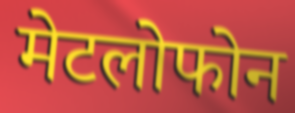
मेटलोफोन